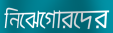
নিঝেগোরদের